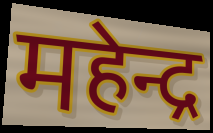
महेन्‍द्र